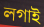
লগাই